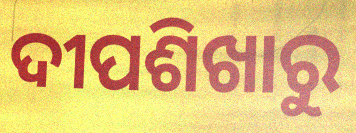
ଦୀପଶିଖାରୁ